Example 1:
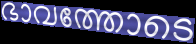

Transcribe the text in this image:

ഭാവത്തോടെ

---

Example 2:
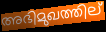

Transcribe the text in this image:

അഭിമുഖത്തില്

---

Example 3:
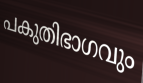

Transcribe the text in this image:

പകുതിഭാഗവും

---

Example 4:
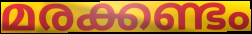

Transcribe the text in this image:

മരക്കണ്ടം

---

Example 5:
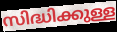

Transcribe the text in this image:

സിദ്ധിക്കുള്ള